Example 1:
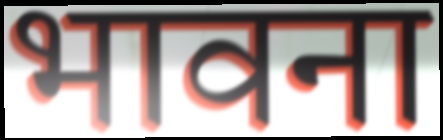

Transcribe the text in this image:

भावना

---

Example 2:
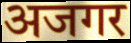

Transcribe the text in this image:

अजगर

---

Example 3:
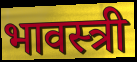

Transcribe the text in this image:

भावस्त्री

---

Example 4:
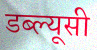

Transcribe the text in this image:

डब्ल्यूसी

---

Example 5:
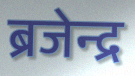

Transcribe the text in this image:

ब्रजेन्द्र